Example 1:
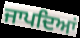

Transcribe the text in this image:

ਜਾਪਦਿਆਂ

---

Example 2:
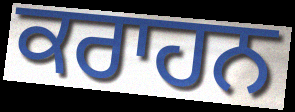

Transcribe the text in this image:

ਕਰਾਹਨ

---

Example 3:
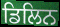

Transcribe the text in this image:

ਡਿਲਿਨ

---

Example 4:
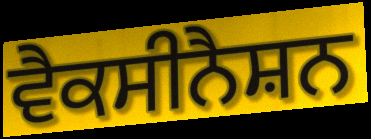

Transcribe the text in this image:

ਵੈਕਸੀਨੈਸ਼ਨ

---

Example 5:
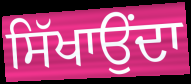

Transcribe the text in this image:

ਸਿੱਖਾਉਂਦਾ